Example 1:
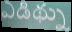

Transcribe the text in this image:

ఎడిథ్ను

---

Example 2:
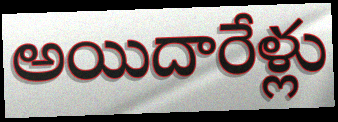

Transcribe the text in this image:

అయిదారేళ్లు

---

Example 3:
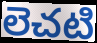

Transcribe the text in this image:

లెచటి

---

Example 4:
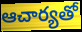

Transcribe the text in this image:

ఆచార్యతో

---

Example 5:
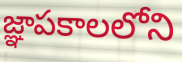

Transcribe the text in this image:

జ్ఞాపకాలలోని